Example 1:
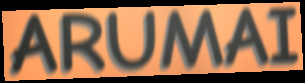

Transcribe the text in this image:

ARUMAI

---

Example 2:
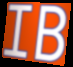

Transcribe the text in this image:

IB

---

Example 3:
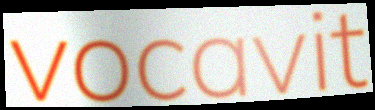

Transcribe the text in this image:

vocavit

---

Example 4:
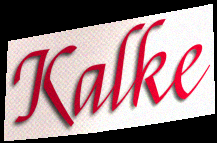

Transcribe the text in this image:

Kalke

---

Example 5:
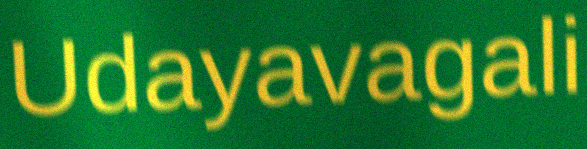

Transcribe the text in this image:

Udayavagali